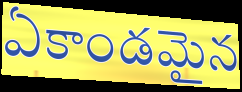
ఏకాండమైన